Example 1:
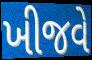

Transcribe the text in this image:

ખીજવે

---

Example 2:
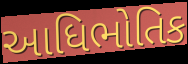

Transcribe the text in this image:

આધિભોતિક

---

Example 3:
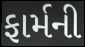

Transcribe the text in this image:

ફાર્મની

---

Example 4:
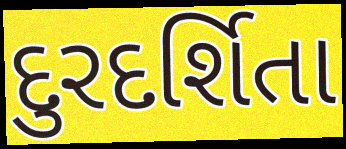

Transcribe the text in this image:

દુરદર્શિતા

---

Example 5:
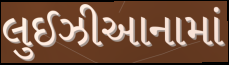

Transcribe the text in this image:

લુઈઝીઆનામાં